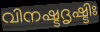
വിനഷ്ടദൃഷ്ടിഃ